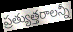
ప్రత్యుత్తరాలన్నీ